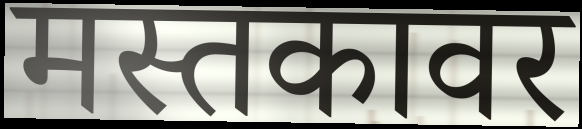
मस्तकावर